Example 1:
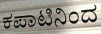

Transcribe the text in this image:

ಕಪಾಟಿನಿಂದ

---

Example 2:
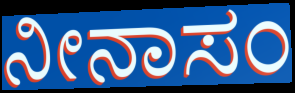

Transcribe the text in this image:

ನೀನಾಸಂ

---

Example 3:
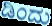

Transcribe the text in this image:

ಡಿಂದು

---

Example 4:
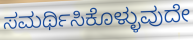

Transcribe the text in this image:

ಸಮರ್ಥಿಸಿಕೊಳ್ಳುವುದೇ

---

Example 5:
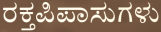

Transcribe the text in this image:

ರಕ್ತಪಿಪಾಸುಗಳು